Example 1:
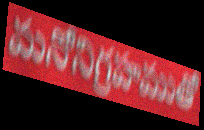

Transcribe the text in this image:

మనోనిగ్రహముతో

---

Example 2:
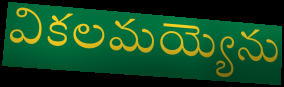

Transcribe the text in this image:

వికలమయ్యెను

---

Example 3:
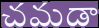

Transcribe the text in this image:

చమడా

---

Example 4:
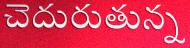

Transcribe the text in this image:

చెదురుతున్న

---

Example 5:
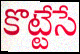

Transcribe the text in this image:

కొట్టేసే